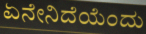
ಏನೇನಿದೆಯೆಂದು